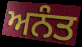
ਅਨੰਤ